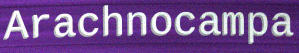
Arachnocampa